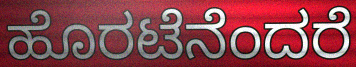
ಹೊರಟೆನೆಂದರೆ